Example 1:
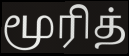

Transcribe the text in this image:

மூரித்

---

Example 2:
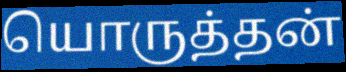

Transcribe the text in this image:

யொருத்தன்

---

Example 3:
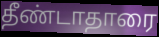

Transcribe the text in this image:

தீண்டாதாரை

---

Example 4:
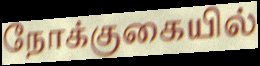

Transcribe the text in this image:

நோக்குகையில்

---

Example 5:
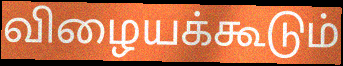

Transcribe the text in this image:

விழையக்கூடும்